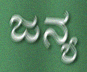
ಜನ್ಯ